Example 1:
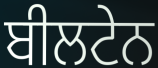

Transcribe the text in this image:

ਬੀਲਟੇਨ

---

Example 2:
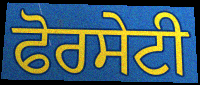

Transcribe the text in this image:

ਫੋਰਸੇਟੀ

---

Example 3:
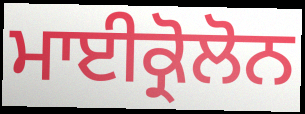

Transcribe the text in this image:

ਮਾਈਕ੍ਰੋਲੋਨ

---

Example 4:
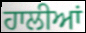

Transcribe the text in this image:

ਹਾਲੀਆਂ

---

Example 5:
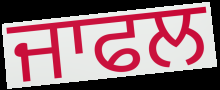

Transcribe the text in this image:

ਜਾਫਲ